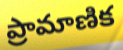
ప్రామాణిక